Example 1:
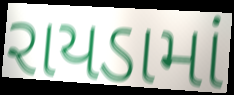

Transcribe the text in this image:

રાયડામાં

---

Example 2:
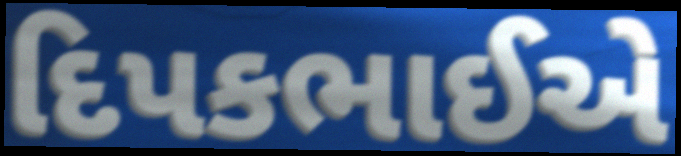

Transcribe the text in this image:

દિપકભાઈએ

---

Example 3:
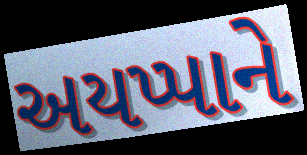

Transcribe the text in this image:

અયપ્પાને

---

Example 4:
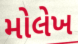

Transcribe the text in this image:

મોલેખ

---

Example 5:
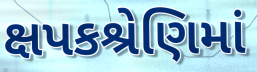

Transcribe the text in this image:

ક્ષપકશ્રેણિમાં